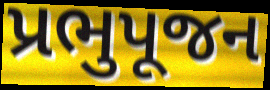
પ્રભુપૂજન